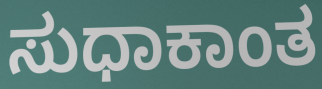
ಸುಧಾಕಾಂತ